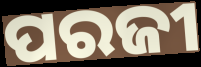
ପରଜୀ